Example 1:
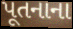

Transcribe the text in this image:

પૂતનાના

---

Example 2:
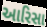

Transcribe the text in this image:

આરિસા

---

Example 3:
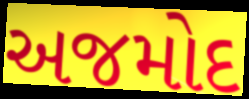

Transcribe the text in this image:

અજમોદ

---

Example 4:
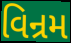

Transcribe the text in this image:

વિન્રમ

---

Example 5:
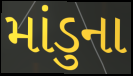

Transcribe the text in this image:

માંડુના